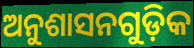
ଅନୁଶାସନଗୁଡ଼ିକ